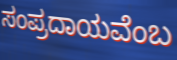
ಸಂಪ್ರದಾಯವೆಂಬ